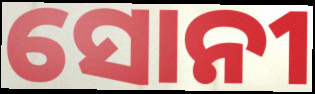
ସୋନୀ